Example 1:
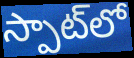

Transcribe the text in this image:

స్పాట్‌లో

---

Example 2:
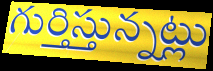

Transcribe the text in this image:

గుర్తిస్తున్నట్లు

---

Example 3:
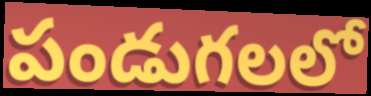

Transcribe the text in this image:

పండుగలలో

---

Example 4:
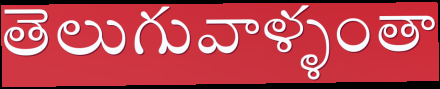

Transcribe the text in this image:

తెలుగువాళ్ళంతా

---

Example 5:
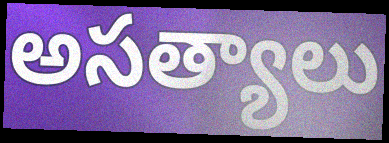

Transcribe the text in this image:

అసత్యాలు